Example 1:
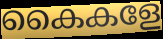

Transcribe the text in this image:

കൈകളേ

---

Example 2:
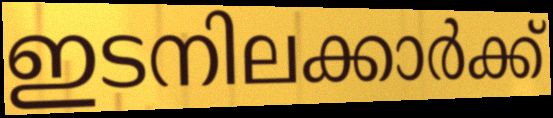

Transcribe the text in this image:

ഇടനിലക്കാർക്ക്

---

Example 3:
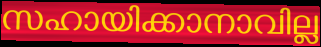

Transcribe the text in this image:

സഹായിക്കാനാവില്ല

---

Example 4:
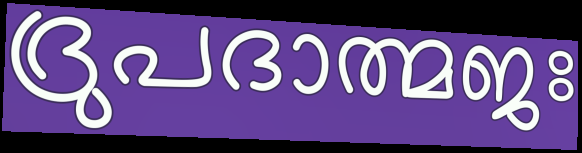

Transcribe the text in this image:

ദ്രുപദാത്മജഃ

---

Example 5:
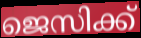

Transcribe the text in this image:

ജെസിക്ക്